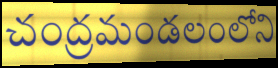
చంద్రమండలంలోని